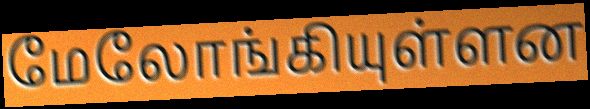
மேலோங்கியுள்ளன